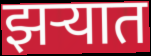
झर्‍यात